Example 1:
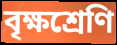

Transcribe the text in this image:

বৃক্ষশ্রেণি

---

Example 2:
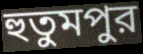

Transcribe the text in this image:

হুতুমপুর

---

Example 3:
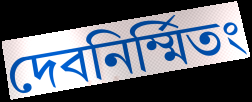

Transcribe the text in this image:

দেবনির্ম্মিতং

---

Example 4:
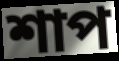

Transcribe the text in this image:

শাপ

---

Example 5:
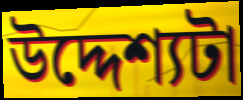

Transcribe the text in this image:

উদ্দেশ্যটা